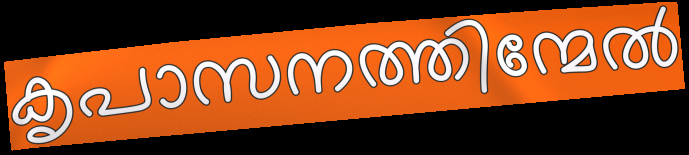
കൃപാസനത്തിന്മേൽ